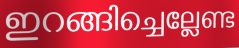
ഇറങ്ങിച്ചെല്ലേണ്ട